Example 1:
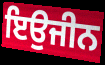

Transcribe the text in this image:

ਇਉਜੀਨ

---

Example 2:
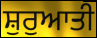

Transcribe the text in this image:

ਸ਼ੁਰੁਆਤੀ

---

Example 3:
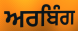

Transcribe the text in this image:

ਅਰਬਿੰਗ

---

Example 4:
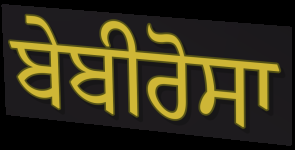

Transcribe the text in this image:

ਬੇਬੀਰੋਸਾ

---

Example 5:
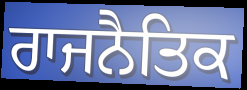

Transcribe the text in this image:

ਰਾਜਨੈਤਿਕ